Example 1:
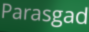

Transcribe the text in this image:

Parasgad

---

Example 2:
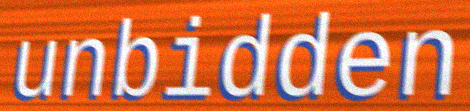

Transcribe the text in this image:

unbidden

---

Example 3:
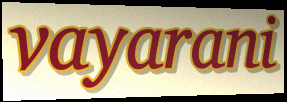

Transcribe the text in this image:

vayarani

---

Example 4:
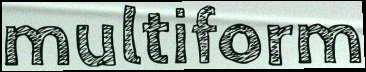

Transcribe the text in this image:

multiform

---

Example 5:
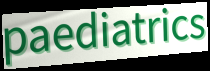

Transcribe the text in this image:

paediatrics